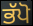
ਭੱਪੋ